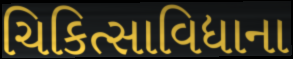
ચિકિત્સાવિદ્યાના